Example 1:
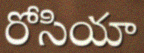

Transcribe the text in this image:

రోసియా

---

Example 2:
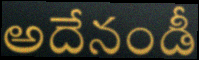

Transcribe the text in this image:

అదేనండీ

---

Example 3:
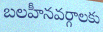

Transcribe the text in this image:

బలహీనవర్గాలకు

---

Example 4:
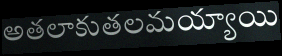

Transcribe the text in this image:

అతలాకుతలమయ్యాయి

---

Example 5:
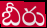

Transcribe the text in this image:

బీరు